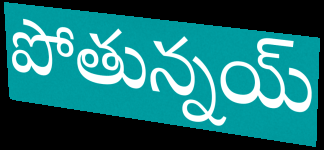
పోతున్నయ్